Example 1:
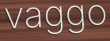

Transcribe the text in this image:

vaggo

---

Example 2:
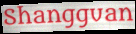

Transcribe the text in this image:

Shangguan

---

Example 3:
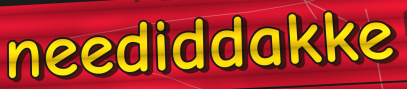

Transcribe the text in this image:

neediddakke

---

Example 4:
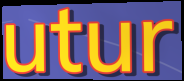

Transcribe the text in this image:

utur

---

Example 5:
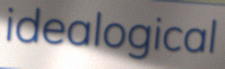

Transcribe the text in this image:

idealogical